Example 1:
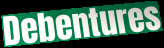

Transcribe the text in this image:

Debentures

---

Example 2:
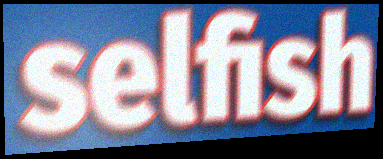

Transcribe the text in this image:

selfish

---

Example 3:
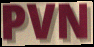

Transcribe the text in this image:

PVN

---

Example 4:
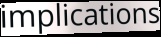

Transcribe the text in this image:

implications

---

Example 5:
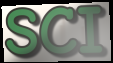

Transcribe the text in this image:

SCI